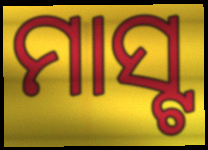
ମାସ୍ଟ